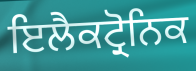
ਇਲੈਕਟ੍ਰੋਨਿਕ